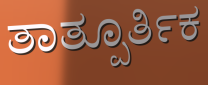
ತಾತ್ಪೂರ್ತಿಕ